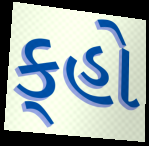
ક્‌હો